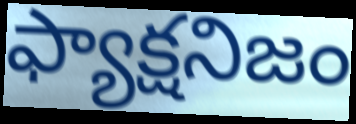
ఫ్యాక్షనిజం